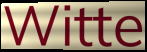
Witte